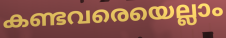
കണ്ടവരെയെല്ലാം